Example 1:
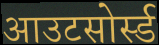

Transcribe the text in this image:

आउटसोर्स्ड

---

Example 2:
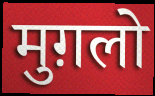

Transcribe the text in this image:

मुग़लो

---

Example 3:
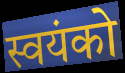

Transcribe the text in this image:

स्वयंको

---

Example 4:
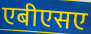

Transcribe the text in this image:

एबीएसए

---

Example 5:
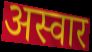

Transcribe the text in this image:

अस्वार